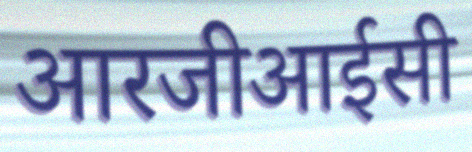
आरजीआईसी